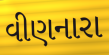
વીણનારા